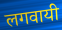
लगवायी